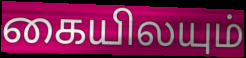
கையிலயும்